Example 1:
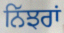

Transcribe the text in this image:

ਨਿੱਝਰਾਂ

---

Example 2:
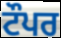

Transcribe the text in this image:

ਟੌਪਰ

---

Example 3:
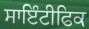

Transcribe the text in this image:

ਸਾਇੰਟੀਫਿਕ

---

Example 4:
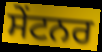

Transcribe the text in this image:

ਸੇਂਟਨਰ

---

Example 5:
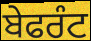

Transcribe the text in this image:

ਬੇਫਰੰਟ